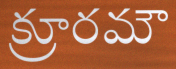
క్రూరమౌ